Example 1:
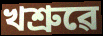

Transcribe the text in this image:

খশ্ৰুৱে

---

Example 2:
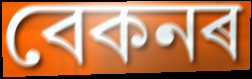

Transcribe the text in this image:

বেকনৰ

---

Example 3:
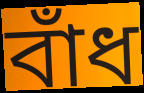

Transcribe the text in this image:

বাঁধ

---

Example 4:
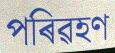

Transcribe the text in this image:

পৰিৱহণ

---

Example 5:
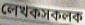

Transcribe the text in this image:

লেখকসকলক